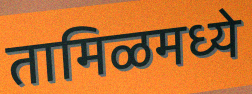
तामिळमध्ये